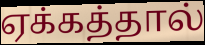
ஏக்கத்தால்